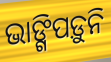
ଭାଙ୍ଗିପଡ଼ୁନି